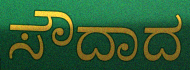
ಸೌದಾದ